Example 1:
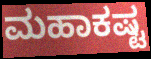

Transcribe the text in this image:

ಮಹಾಕಷ್ಟ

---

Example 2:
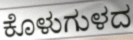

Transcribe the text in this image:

ಕೊಳುಗುಳದ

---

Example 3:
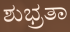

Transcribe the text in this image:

ಶುಭ್ರತಾ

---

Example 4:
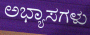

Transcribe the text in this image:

ಅಭ್ಯಾಸಗಳು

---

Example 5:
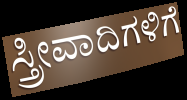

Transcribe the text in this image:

ಸ್ತ್ರೀವಾದಿಗಳಿಗೆ